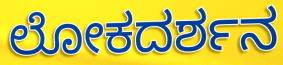
ಲೋಕದರ್ಶನ